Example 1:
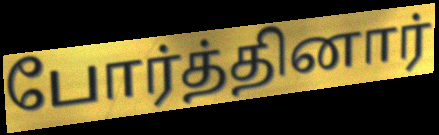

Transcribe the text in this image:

போர்த்தினார்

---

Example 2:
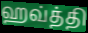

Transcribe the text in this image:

ஹவ்த்தி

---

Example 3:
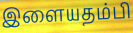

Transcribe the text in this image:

இளையதம்பி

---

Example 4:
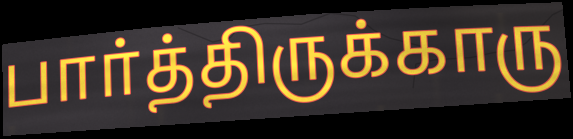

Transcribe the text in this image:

பார்த்திருக்காரு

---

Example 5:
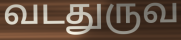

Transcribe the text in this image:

வடதுருவ